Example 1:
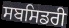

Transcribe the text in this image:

ਸਬਸਿਡਰੀ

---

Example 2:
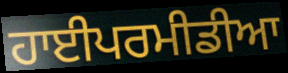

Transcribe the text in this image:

ਹਾਈਪਰਮੀਡੀਆ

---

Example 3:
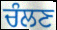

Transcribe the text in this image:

ਚੰਲਣ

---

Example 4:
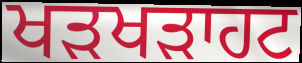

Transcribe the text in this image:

ਖੜਖੜਾਹਟ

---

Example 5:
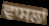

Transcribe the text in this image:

ਵਾਸਲਾਂ